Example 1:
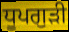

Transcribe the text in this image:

ਧੂਪਗੁੜੀ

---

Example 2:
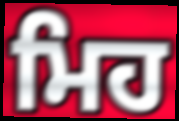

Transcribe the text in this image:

ਮਿਹ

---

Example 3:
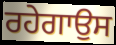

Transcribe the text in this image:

ਰਹੇਗਾਉਸ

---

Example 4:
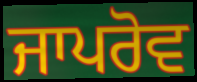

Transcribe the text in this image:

ਜਾਪਰੋਵ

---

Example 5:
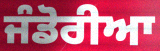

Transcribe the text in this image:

ਜੰਡੋਰੀਆ